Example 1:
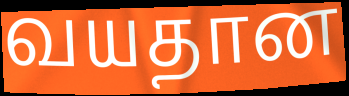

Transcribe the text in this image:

வயதான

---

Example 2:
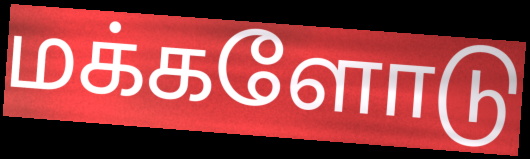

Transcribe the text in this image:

மக்களோடு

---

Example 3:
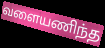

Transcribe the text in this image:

வளையணிந்த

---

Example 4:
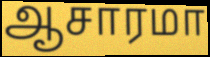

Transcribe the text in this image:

ஆசாரமா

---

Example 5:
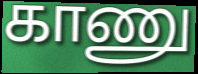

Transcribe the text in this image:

காணு